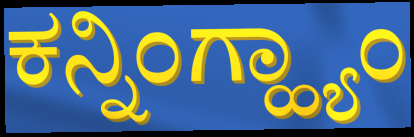
ಕನ್ನಿಂಗ್ಹ್ಯಾಂ